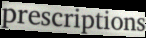
prescriptions